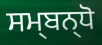
ਸਮ੍ਬਨ੍ਧੋ